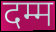
दम्म